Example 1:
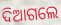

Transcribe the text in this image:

ଦିଆଗଲେ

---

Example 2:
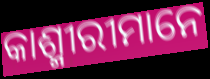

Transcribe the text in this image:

କାଶ୍ମୀରୀମାନେ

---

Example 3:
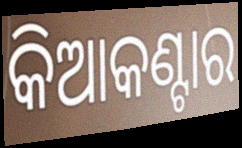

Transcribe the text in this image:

କିଆକଣ୍ଟାର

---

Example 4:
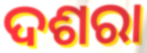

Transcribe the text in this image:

ଦଶରା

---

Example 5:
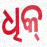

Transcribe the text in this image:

ଧିକ୍